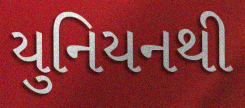
યુનિયનથી